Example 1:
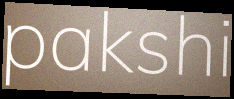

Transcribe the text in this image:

pakshi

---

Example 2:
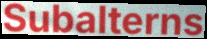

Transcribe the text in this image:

Subalterns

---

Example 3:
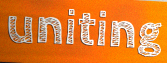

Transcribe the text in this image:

uniting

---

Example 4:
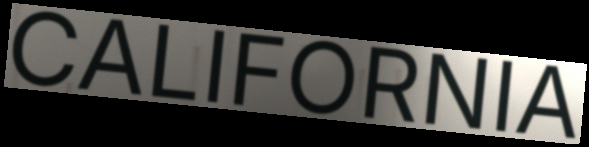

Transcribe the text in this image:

CALIFORNIA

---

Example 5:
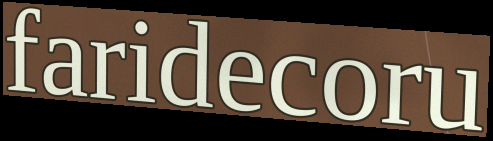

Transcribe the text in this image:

faridecoru